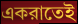
একরাতেই